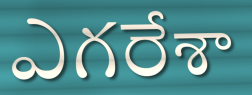
ఎగరేశా